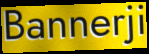
Bannerji